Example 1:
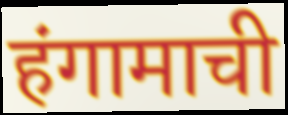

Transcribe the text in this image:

हंगामाची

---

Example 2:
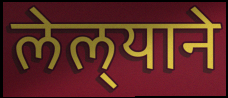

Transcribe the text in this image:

लेल्याने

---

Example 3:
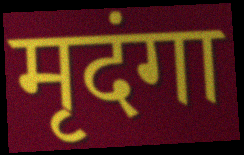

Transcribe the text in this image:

मृदंगा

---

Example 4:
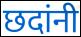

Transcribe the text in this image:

छदांनी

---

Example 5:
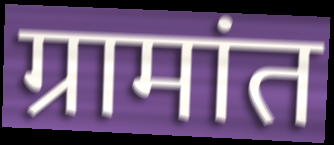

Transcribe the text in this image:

ग्रामांत